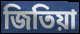
জিতিয়া